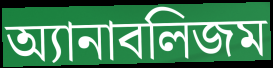
অ্যানাবলিজম